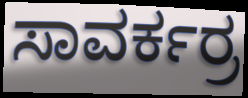
ಸಾವರ್ಕರ್ರ